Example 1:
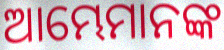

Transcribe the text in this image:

ଆମ୍ଭେମାନଙ୍କ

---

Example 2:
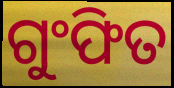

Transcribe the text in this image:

ଗୁଂଫିତ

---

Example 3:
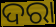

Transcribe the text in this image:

ଦରା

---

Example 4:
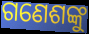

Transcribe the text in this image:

ଗଣେଶଙ୍କୁ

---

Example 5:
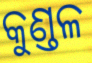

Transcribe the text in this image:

କୁଣ୍ଡଳ